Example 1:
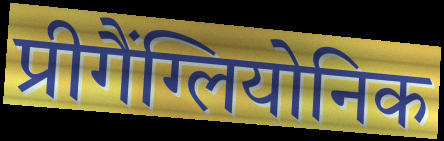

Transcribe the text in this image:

प्रीगैंग्लियोनिक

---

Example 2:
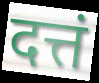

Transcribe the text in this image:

दत्तं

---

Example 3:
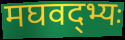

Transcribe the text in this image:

मघवद्भ्यः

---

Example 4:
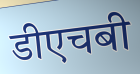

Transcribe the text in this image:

डीएचबी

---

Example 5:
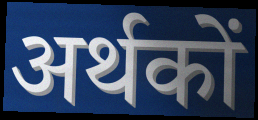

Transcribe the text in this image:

अर्थकों